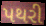
પથરી